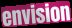
envision